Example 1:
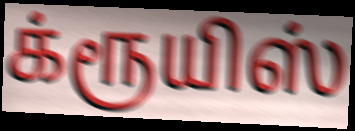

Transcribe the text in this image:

க்ரூயிஸ்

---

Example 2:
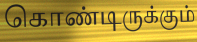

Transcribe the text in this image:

கொண்டிருக்கும்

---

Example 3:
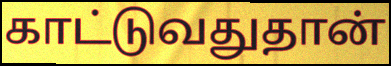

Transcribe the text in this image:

காட்டுவதுதான்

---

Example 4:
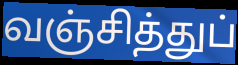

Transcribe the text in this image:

வஞ்சித்துப்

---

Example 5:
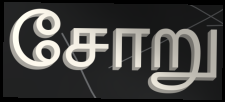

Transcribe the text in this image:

சோறு